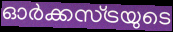
ഓർക്കസ്ട്രയുടെ